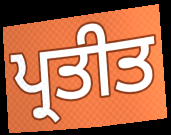
ਪ੍ਰਤੀਤ